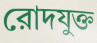
রোদযুক্ত